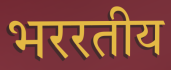
भररतीय